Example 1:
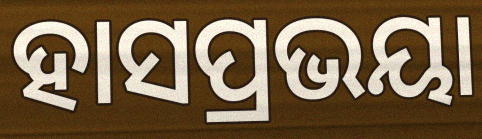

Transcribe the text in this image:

ହାସପ୍ରଭୟା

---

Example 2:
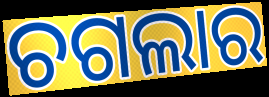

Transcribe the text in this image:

ଚଗଲାର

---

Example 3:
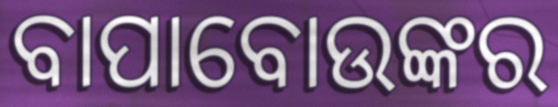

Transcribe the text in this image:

ବାପାବୋଉଙ୍କର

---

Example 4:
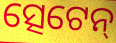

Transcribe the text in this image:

ତ୍ସେଟେନ୍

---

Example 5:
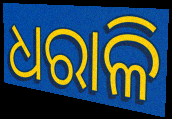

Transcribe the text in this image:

ଧରାଳି